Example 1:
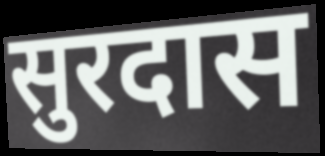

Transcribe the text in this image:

सुरदास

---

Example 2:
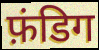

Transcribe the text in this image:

फ़ंडिग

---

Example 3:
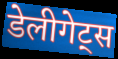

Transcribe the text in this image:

डेलीगेट्स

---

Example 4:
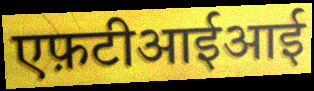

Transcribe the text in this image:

एफ़टीआईआई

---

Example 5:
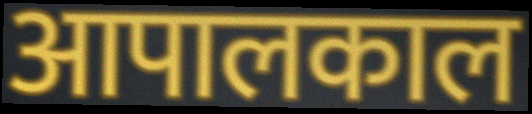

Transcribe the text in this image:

आपालकाल